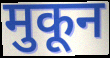
मुकून